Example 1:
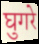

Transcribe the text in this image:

घुगरे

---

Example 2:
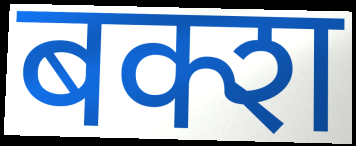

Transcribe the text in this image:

बक्श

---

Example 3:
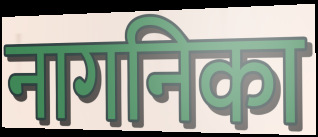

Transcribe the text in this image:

नागनिका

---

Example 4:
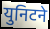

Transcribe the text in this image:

युनिटने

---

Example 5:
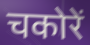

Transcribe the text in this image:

चकोरें